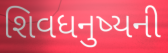
શિવધનુષ્યની